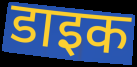
डाइक